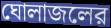
ঘোলাজলের